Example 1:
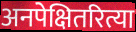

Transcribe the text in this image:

अनपेक्षितरित्या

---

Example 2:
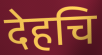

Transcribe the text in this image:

देहचि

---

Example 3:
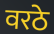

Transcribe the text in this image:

वरठे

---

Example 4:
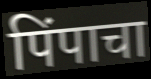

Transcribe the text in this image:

पिंपाचा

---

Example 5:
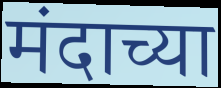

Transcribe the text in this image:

मंदाच्या